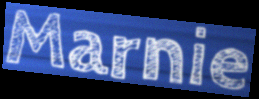
Marnie